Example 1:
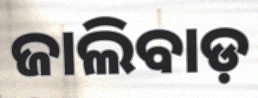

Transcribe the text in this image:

ଜାଲିବାଡ଼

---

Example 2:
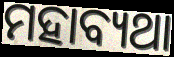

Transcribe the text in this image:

ମହାବ୍ୟଥା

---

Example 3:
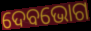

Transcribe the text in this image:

ଦେବଭୋଗ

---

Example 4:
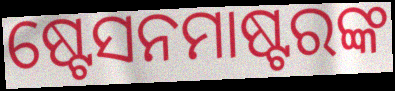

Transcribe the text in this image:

ଷ୍ଟେସନମାଷ୍ଟରଙ୍କ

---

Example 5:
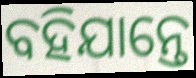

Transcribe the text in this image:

ବହିଯାନ୍ତେ